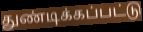
துண்டிக்கப்பட்டு